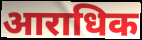
आराधिक